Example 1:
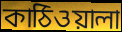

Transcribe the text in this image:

কাঠিওয়ালা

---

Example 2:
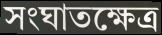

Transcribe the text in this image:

সংঘাতক্ষেত্র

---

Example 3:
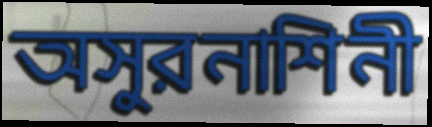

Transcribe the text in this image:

অসুরনাশিনী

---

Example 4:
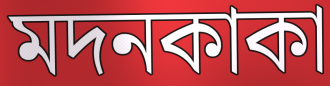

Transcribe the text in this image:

মদনকাকা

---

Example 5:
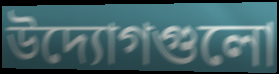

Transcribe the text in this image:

উদ্যোগগুলো